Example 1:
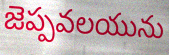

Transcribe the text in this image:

జెప్పవలయును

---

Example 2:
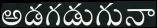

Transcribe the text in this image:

అడగడుగునా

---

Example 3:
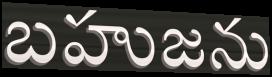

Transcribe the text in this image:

బహుజను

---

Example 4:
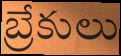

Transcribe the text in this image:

బ్రేకులు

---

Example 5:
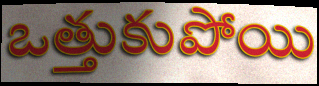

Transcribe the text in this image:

ఒత్తుకుపోయి